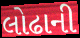
લોઢાની